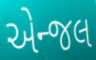
એન્જલ